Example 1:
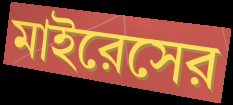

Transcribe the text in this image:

মাইরেসের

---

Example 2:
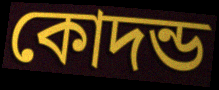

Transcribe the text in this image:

কোদন্ড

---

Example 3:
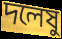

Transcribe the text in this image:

দলেষু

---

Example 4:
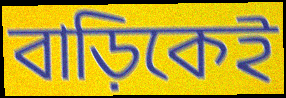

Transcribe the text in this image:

বাড়িকেই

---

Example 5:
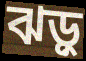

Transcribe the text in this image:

ঝড়ু